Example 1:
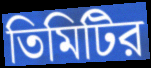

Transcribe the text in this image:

তিমিটির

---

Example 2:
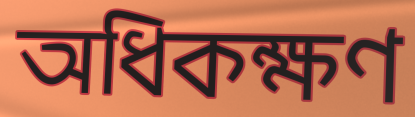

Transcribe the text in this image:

অধিকক্ষণ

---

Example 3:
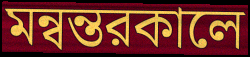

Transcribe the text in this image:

মন্বন্তরকালে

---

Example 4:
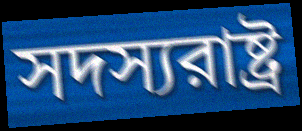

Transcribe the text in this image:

সদস্যরাষ্ট্র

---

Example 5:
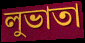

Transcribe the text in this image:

লুভাতা